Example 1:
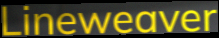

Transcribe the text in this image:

Lineweaver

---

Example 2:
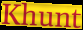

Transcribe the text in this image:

Khunt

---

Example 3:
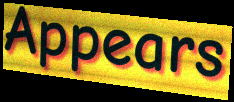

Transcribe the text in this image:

Appears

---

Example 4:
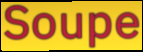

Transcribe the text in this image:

Soupe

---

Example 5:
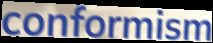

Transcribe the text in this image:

conformism